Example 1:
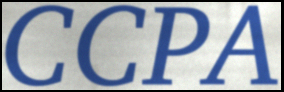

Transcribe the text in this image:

CCPA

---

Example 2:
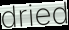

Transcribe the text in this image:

dried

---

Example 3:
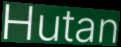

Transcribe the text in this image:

Hutan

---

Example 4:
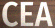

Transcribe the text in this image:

CEA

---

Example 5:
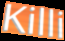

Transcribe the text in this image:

Killi